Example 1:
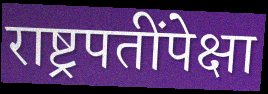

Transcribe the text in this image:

राष्ट्रपतींपेक्षा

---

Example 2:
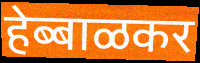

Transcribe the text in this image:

हेब्बाळकर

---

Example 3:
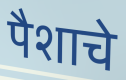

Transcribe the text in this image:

पैशाचे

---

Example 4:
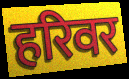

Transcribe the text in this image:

हरिवर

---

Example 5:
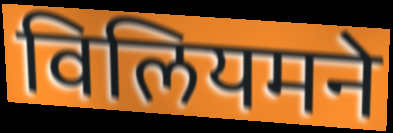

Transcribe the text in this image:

विलियमने